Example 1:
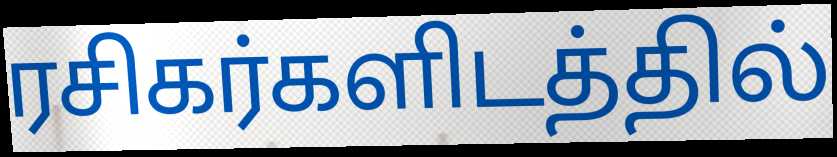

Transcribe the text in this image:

ரசிகர்களிடத்தில்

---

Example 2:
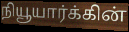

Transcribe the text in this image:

நியூயார்க்கின்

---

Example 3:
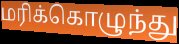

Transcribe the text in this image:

மரிக்கொழுந்து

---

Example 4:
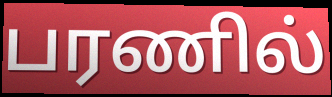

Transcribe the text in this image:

பரணில்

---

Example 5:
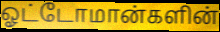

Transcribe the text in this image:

ஓட்டோமான்களின்